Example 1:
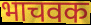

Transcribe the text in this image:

भाचवक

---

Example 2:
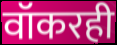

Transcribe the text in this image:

वॉकरही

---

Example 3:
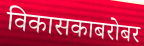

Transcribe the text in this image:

विकासकाबरोबर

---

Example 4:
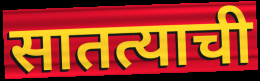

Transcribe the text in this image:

सातत्याची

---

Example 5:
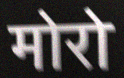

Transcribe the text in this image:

मोरो